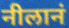
नीलानं